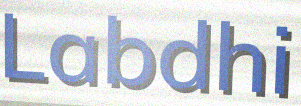
Labdhi